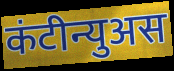
कंटीन्युअस